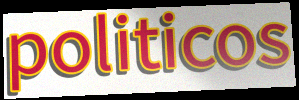
politicos